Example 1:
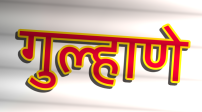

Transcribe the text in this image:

गुल्हाणे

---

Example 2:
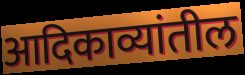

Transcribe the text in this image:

आदिकाव्यांतील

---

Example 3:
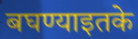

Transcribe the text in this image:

बघण्याइतके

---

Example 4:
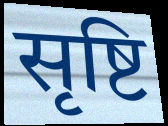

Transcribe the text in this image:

सृष्टि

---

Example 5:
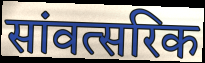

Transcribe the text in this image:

सांवत्सरिक